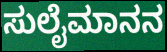
ಸುಲೈಮಾನನ